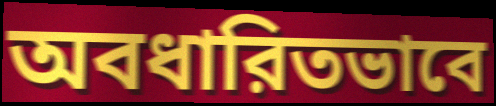
অবধারিতভাবে